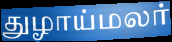
துழாய்மலர்